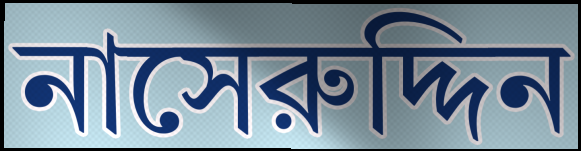
নাসেরুদ্দিন